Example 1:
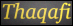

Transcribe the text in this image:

Thaqafi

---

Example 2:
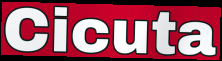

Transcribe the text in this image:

Cicuta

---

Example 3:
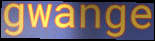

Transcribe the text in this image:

gwange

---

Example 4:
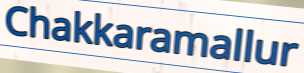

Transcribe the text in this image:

Chakkaramallur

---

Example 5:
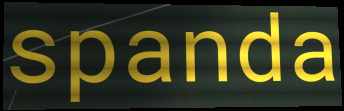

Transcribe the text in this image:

spanda